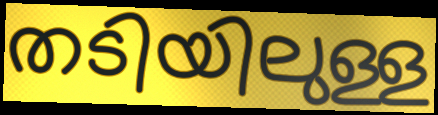
തടിയിലുള്ള